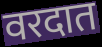
वरदात